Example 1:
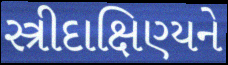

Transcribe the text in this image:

સ્ત્રીદાક્ષિણ્યને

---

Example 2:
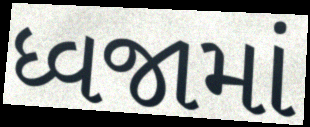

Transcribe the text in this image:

ધ્વજામાં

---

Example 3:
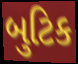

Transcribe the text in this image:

બુટિક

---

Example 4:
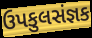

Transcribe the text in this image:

ઉપકુલસંજ્ઞક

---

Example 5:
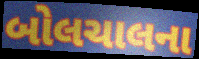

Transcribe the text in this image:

બોલચાલના